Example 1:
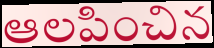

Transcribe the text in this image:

ఆలపించిన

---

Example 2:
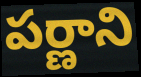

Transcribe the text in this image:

పర్ణాని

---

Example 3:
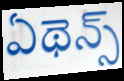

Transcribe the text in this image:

ఏథెన్స్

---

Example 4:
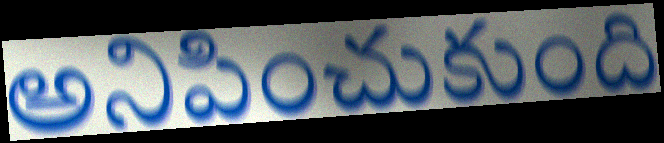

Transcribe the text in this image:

అనిపించుకుంది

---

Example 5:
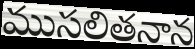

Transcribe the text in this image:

ముసలితనాన